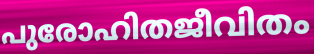
പുരോഹിതജീവിതം